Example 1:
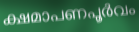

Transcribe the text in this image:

ക്ഷമാപണപൂർവം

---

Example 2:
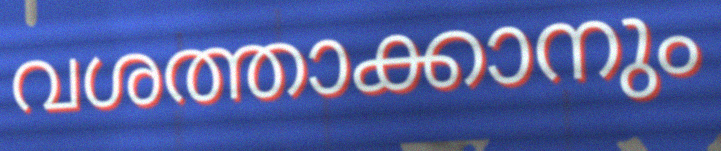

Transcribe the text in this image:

വശത്താക്കാനും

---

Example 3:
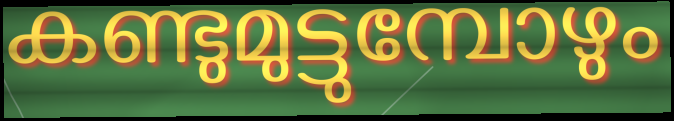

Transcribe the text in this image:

കണ്ടുമുട്ടുമ്പോഴും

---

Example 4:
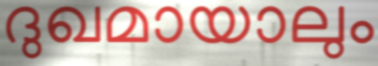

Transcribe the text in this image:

ദുഖമായാലും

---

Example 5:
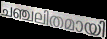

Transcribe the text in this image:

ചഞ്ചലിതമായി